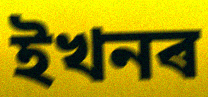
ইখনৰ